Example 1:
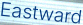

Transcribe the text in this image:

Eastward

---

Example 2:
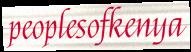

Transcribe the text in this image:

peoplesofkenya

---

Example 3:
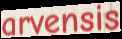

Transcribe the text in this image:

arvensis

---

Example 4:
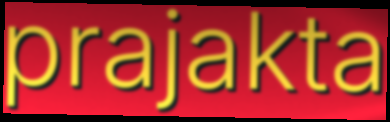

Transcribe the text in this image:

prajakta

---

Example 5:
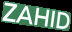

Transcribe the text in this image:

ZAHID